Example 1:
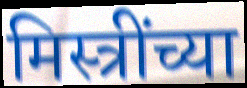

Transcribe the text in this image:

मिस्त्रींच्या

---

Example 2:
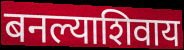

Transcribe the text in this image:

बनल्याशिवाय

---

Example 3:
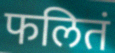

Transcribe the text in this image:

फलितं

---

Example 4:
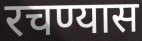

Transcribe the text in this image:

रचण्यास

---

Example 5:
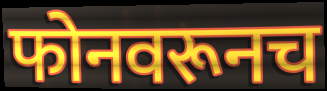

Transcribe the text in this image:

फोनवरूनच